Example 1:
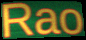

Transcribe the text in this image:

Rao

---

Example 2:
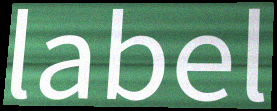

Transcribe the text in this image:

label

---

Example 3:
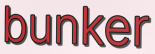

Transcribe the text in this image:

bunker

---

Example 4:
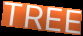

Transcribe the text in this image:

TREE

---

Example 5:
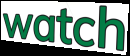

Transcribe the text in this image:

watch